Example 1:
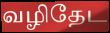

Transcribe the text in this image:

வழிதேட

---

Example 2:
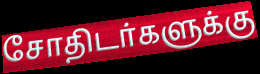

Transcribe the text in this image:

சோதிடர்களுக்கு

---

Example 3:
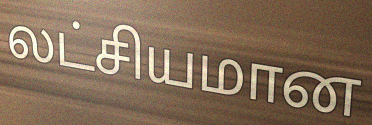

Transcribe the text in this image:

லட்சியமான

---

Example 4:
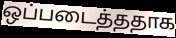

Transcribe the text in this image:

ஒப்படைத்ததாக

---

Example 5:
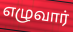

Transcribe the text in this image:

எழுவார்